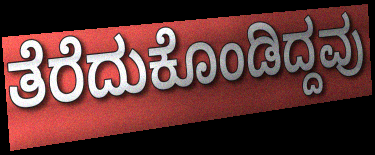
ತೆರೆದುಕೊಂಡಿದ್ದವು